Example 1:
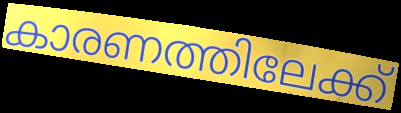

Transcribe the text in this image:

കാരണത്തിലേക്ക്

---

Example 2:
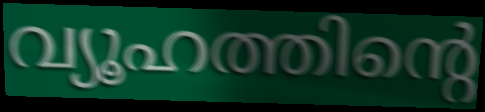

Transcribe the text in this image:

വ്യൂഹത്തിന്റെ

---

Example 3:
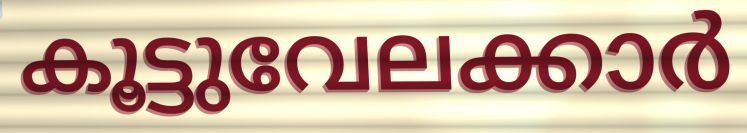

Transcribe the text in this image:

കൂട്ടുവേലക്കാർ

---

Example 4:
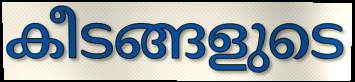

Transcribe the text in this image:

കീടങ്ങളുടെ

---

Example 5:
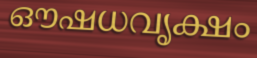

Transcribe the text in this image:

ഔഷധവൃക്ഷം